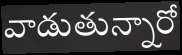
వాడుతున్నారో